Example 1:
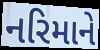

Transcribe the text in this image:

નરિમાને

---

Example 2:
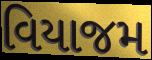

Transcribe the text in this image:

વિયાજમ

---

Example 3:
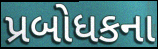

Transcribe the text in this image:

પ્રબોધકના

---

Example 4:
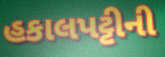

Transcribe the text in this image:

હકાલપટ્ટીની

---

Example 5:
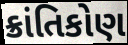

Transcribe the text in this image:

ક્રાંતિકોણ